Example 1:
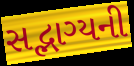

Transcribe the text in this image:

સદ્ભાગ્યની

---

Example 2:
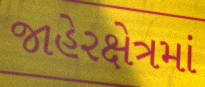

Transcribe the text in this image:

જાહેરક્ષેત્રમાં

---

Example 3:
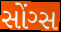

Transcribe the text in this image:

સોંગ્સ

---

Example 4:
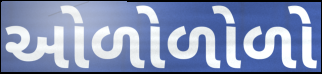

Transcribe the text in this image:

ઓળોળોળો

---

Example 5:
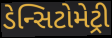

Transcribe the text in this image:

ડેન્સિટોમેટ્રી